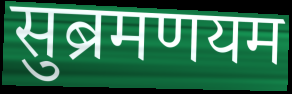
सुब्रमणयम